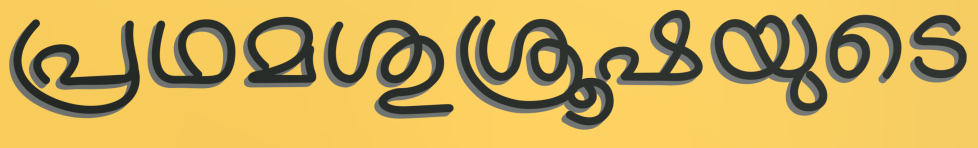
പ്രഥമശുശ്രൂഷയുടെ